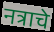
नत्राचे